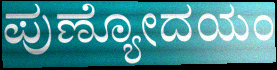
ಪುಣ್ಯೋದಯಂ